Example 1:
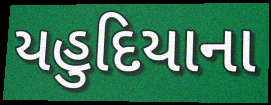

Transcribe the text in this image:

યહુદિયાના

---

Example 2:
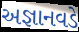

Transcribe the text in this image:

અજ્ઞાનવડે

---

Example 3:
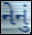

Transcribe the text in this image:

નેનું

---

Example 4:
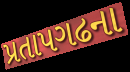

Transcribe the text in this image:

પ્રતાપગઢના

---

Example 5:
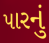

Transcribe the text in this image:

પારનું